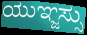
ಯುಞ್ಜಸ್ಸು